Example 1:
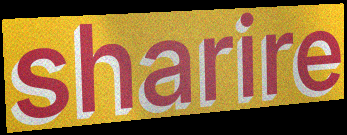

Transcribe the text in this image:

sharire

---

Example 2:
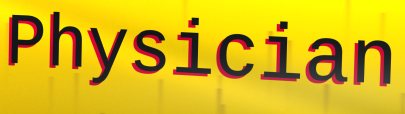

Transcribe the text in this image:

Physician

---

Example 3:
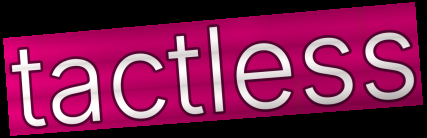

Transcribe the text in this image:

tactless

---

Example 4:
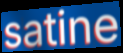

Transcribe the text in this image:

satine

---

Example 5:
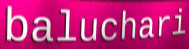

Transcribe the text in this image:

baluchari